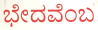
ಭೇದವೆಂಬ